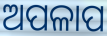
ଅପଳାପ